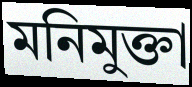
মনিমুক্তা